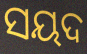
ସୟଦ